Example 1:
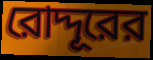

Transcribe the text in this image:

রোদ্দূরের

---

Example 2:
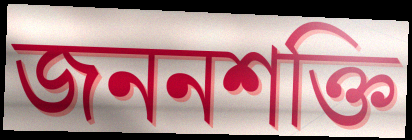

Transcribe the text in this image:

জননশক্তি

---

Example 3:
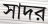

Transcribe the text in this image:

সাদর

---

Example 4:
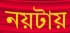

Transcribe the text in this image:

নয়টায়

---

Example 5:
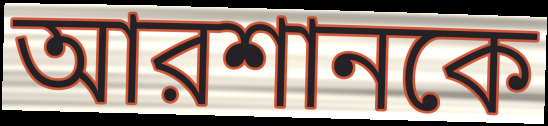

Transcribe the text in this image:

আরশানকে